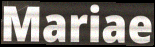
Mariae